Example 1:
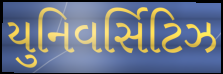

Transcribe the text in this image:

યુનિવર્સિટિઝ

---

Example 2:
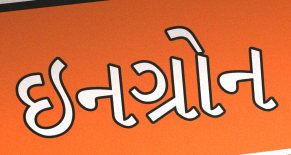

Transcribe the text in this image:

ઇનગ્રોન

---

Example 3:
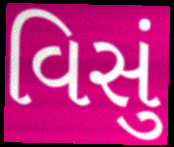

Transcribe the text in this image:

વિસું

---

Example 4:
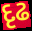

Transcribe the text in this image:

દૃઢ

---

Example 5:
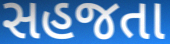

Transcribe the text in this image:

સહજતા